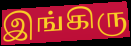
இங்கிரு